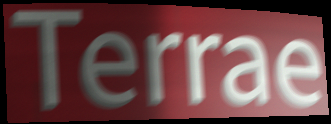
Terrae